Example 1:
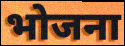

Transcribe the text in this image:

भोजना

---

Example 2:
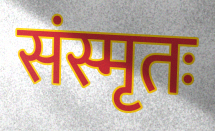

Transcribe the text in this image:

संस्मृतः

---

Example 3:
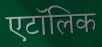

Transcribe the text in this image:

एटॉलिक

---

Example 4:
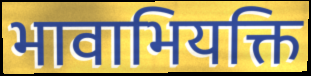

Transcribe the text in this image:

भावाभियक्ति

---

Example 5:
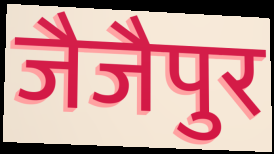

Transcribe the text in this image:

जैजैपुर